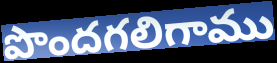
పొందగలిగాము